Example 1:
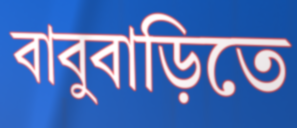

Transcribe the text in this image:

বাবুবাড়িতে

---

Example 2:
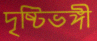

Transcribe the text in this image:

দৃষ্টিভঙ্গী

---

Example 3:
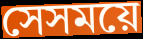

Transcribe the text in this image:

সেসময়ে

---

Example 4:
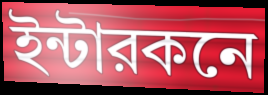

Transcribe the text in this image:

ইন্টারকনে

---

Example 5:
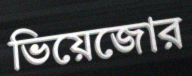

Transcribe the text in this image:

ভিয়েজোর